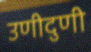
उणीदुणी